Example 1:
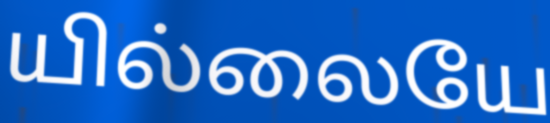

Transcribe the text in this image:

யில்லையே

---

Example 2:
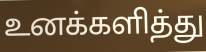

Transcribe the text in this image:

உனக்களித்து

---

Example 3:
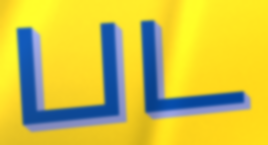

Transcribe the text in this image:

பட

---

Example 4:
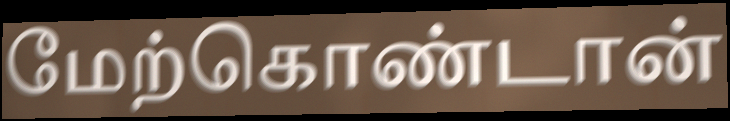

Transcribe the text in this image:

மேற்கொண்டான்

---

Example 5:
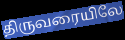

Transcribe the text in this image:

திருவரையிலே